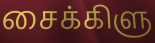
சைக்கிளு